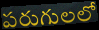
పరుగులలో